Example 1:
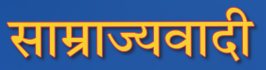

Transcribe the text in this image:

साम्राज्यवादी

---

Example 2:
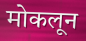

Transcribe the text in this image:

मोकलून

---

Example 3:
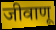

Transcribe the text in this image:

जीवाणू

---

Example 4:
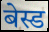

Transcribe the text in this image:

बेस्ड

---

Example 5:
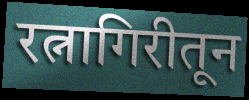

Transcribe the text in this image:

रत्नागिरीतून